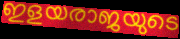
ഇളയരാജയുടെ